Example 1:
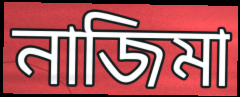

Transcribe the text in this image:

নাজিমা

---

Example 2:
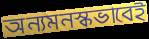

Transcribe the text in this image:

অন্যমনস্কভাবেই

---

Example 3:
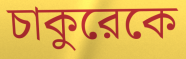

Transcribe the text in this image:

চাকুরেকে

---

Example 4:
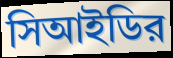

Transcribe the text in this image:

সিআইডির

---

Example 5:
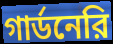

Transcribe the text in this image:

গার্ডনেরি